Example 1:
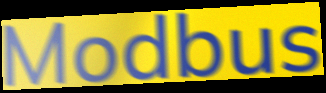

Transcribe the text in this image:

Modbus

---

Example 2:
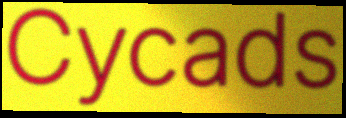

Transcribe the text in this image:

Cycads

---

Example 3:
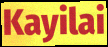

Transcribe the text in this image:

Kayilai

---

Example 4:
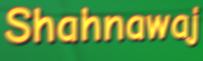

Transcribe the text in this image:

Shahnawaj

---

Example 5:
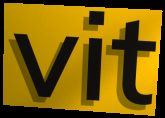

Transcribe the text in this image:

vit